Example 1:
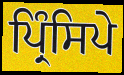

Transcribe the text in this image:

ਪ੍ਰਿੰਸਿਪੇ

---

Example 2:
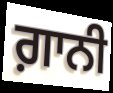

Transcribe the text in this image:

ਗ਼ਾਨੀ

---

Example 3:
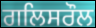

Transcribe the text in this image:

ਗਲਿਸਰੌਲ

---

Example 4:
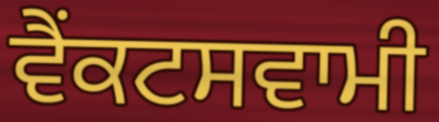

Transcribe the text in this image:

ਵੈਂਕਟਸਵਾਮੀ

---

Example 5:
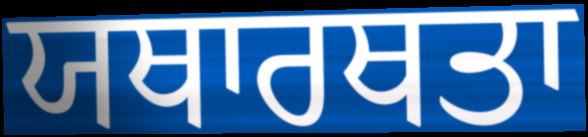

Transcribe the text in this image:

ਯਥਾਰਥਤਾ